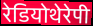
रेडियोथेरेपी